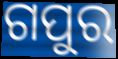
ଗପୁର